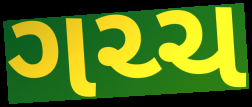
ગચ્ચ